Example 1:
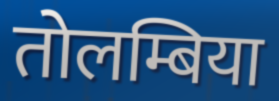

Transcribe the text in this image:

तोलम्बिया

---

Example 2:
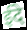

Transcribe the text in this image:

ईदे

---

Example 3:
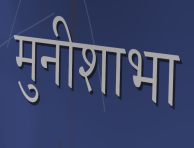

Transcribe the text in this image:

मुनीशाभा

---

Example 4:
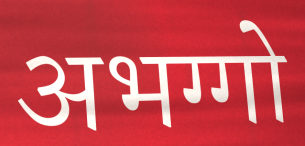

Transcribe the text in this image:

अभग्गो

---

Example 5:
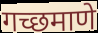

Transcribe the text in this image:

गच्छमाणे